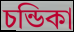
চন্ডিকা